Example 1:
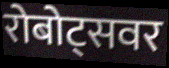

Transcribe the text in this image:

रोबोट्सवर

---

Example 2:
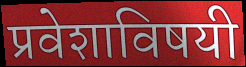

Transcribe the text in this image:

प्रवेशाविषयी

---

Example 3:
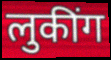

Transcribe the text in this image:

लुकींग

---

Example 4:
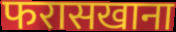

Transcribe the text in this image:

फरासखाना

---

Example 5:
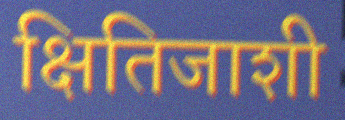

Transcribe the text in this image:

क्षितिजाशी